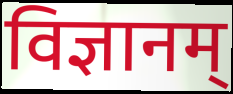
विज्ञानम्